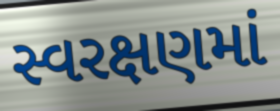
સ્વરક્ષણમાં